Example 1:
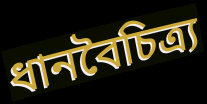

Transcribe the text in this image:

ধানবৈচিত্র্য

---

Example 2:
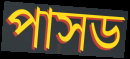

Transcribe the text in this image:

পাসড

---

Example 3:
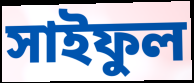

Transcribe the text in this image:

সাইফুল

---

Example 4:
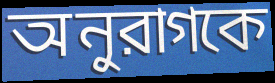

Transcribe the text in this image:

অনুরাগকে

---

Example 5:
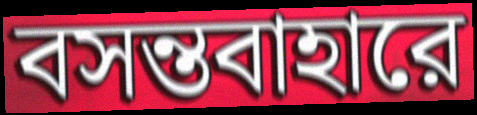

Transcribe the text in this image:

বসন্তবাহারে